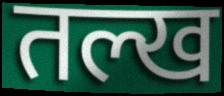
तल्‍ख